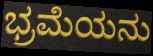
ಭ್ರಮೆಯನು